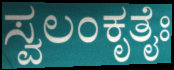
ಸ್ವಲಂಕೃತೈಃ